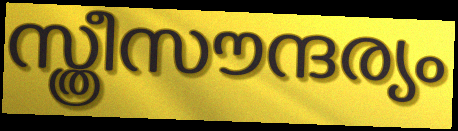
സ്ത്രീസൗന്ദര്യം